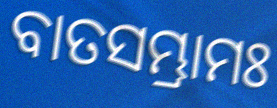
ବାତସମ୍ଭ୍ରାମଃ